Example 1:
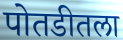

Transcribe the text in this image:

पोतडीतला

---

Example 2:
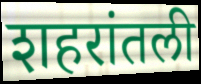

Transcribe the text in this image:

शहरांतली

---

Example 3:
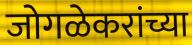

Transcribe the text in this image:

जोगळेकरांच्या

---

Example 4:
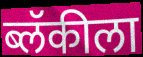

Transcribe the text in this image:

ब्लॅकीला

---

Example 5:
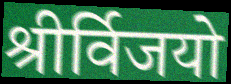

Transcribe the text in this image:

श्रीर्विजयो